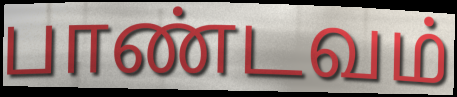
பாண்டவம்